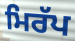
ਮਿਰੱਪ